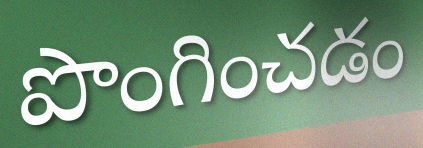
పొంగించడం